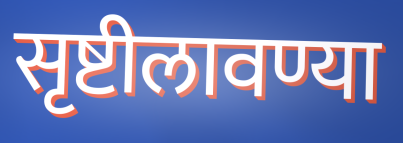
सृष्टीलावण्या